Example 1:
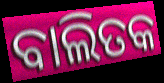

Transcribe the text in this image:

ବାଲିତକ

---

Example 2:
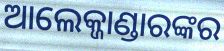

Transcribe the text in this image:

ଆଲେକ୍ଜାଣ୍ଡାରଙ୍କର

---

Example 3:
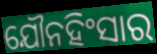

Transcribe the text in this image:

ଯୌନହିଂସାର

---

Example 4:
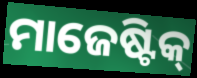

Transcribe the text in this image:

ମାଜେଷ୍ଟିକ୍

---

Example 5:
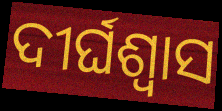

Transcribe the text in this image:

ଦୀର୍ଘଶ୍ୱାସ